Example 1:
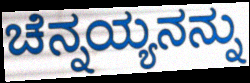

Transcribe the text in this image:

ಚೆನ್ನಯ್ಯನನ್ನು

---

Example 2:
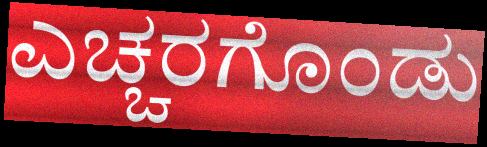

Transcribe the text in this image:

ಎಚ್ಚರಗೊಂಡು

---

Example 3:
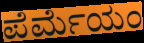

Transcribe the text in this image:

ಪೆರ್ಮೆಯಂ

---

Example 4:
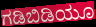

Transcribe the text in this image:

ಗಡಿಬಿಡಿಯೂ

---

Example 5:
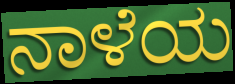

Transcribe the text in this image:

ನಾಳೆಯ